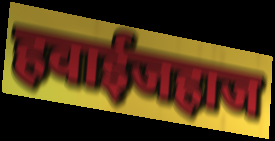
हवाईजहाज